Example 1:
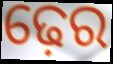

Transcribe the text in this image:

ଢ଼େର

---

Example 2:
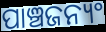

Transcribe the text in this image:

ପାଞ୍ଚଜନ୍ୟଂ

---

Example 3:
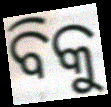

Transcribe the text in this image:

ବିକୁ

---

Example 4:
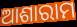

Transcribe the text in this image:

ଆଶାରାମ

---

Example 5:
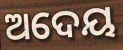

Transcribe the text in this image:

ଅଦେୟ